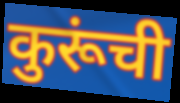
कुरूंची